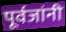
पूर्वजांनी